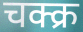
चक्क्र